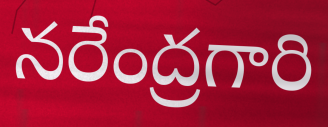
నరేంద్రగారి